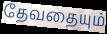
தேவதையும்